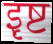
इृष्ट